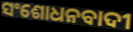
ସଂଶୋଧନବାଦୀ